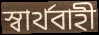
স্বার্থবাহী